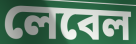
লেবেল